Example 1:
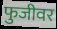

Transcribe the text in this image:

फुजीवर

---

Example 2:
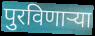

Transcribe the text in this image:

पुरविणाऱ्या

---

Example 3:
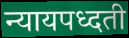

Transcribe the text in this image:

न्यायपध्दती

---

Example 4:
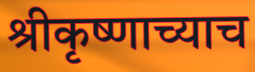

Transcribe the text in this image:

श्रीकृष्णाच्याच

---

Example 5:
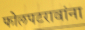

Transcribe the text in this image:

फोलपटरावांना